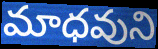
మాధవుని